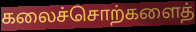
கலைச்சொற்களைத்